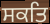
ਸਕਤਿ